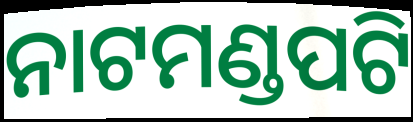
ନାଟମଣ୍ଡପଟି